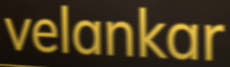
velankar